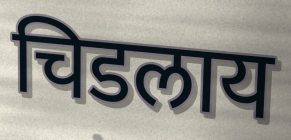
चिडलाय